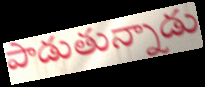
పాడుతున్నాడు